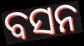
ବସନ